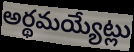
అర్థమయ్యేట్లు